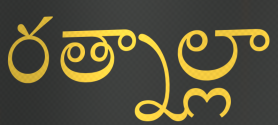
రత్నాల్లా